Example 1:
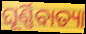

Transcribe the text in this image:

ଘୂର୍ଣ୍ଣିବାତ୍ୟା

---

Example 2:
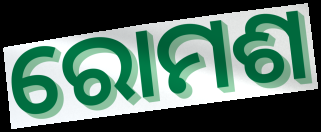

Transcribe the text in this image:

ରୋମଶ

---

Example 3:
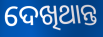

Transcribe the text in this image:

ଦେଖିଥାନ୍ତ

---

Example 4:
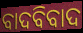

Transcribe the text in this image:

ବାଦବିବାଦ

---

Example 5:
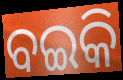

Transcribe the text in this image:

ବଇକି